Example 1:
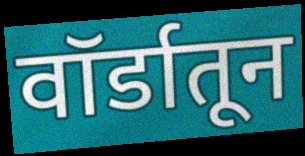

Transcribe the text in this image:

वॉर्डातून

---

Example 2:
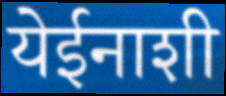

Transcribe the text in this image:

येईनाशी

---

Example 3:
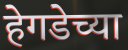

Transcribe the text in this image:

हेगडेच्या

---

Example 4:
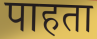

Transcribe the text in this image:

पाहता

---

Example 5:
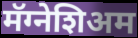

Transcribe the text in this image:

मॅग्नेशिअम